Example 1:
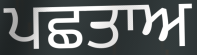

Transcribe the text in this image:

ਪਛਤਾਅ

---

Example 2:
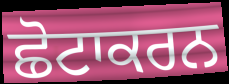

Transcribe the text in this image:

ਛੋਟਾਕਰਨ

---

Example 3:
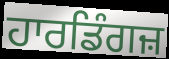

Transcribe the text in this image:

ਹਾਰਡਿੰਗਜ਼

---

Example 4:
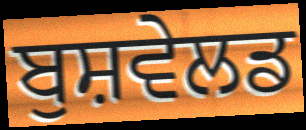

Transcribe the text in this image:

ਬੁਸ਼ਵੇਲਡ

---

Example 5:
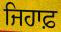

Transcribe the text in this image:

ਜਿਹਾਫ਼